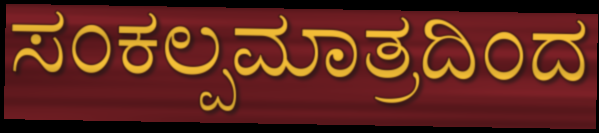
ಸಂಕಲ್ಪಮಾತ್ರದಿಂದ